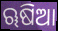
ୠଷିଆ